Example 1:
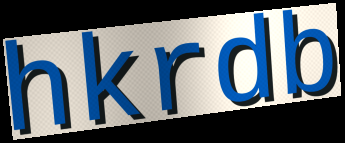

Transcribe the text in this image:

hkrdb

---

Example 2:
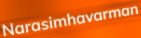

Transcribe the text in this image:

Narasimhavarman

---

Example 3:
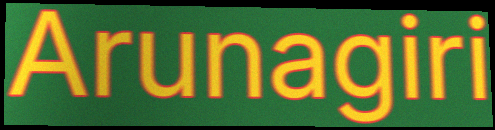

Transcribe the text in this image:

Arunagiri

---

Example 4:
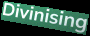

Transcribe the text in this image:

Divinising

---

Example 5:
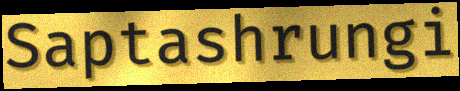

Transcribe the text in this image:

Saptashrungi